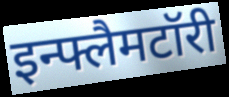
इन्फ्लैमटॉरी